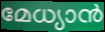
മേധ്യാൻ